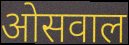
ओसवाल